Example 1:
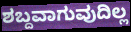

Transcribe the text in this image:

ಶಬ್ದವಾಗುವುದಿಲ್ಲ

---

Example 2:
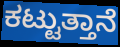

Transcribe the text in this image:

ಕಟ್ಟುತ್ತಾನೆ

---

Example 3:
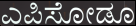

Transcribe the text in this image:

ಎಪಿಸೋಡೂ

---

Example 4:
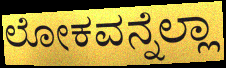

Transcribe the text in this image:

ಲೋಕವನ್ನೆಲ್ಲಾ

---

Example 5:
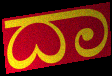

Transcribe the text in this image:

ದಾ